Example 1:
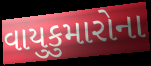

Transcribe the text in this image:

વાયુકુમારોના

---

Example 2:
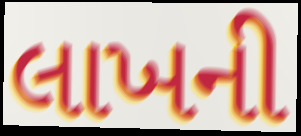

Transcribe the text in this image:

લાખની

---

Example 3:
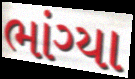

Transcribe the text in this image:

ભાંગ્યા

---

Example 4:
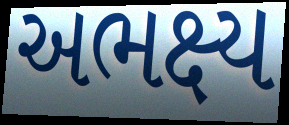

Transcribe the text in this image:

અભક્ષ્ય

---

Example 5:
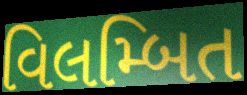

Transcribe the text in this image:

વિલમ્બિત